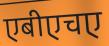
एबीएचए